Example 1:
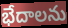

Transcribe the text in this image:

భేదాలను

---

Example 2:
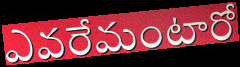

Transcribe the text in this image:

ఎవరేమంటారో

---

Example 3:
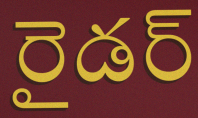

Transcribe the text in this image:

రైడర్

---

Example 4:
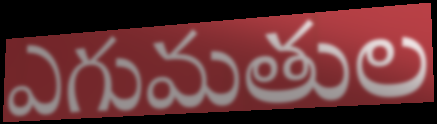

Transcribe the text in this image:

ఎగుమతుల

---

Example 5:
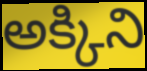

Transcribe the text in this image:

అక్కిని